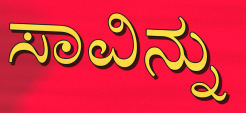
ಸಾವಿನ್ನು